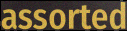
assorted